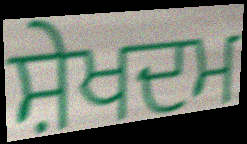
ਸ਼ੇਖਦਮ